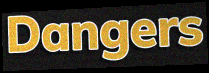
Dangers